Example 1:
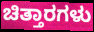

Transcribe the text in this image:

ಚಿತ್ತಾರಗಳು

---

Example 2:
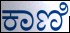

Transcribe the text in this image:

ಕಾಣಿ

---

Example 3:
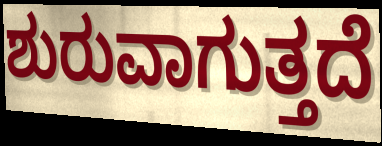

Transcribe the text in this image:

ಶುರುವಾಗುತ್ತದೆ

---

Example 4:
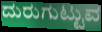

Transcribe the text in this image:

ದುರುಗುಟ್ಟುವ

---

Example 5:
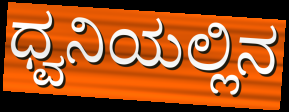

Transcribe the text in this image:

ಧ್ವನಿಯಲ್ಲಿನ